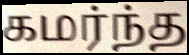
கமர்ந்த